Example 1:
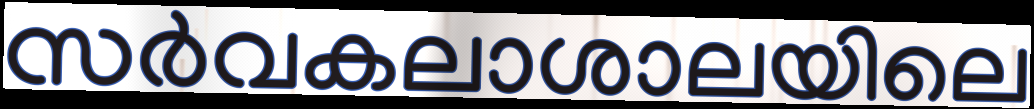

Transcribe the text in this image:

സർവകലാശാലയിലെ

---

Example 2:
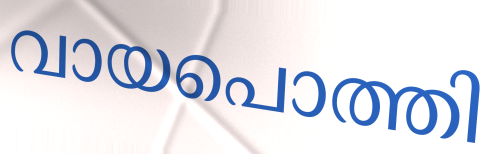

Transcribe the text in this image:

വായപൊത്തി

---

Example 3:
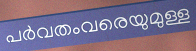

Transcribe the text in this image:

പർവതംവരെയുമുള്ള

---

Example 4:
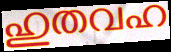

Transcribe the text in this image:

ഹുതവഹ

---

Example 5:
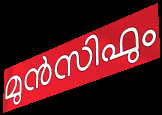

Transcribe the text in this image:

മുൻസിഫും